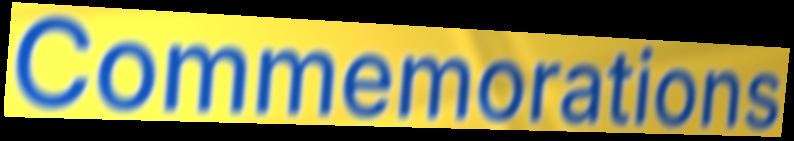
Commemorations